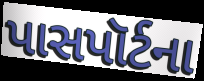
પાસપૉર્ટના